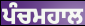
ਪੰਚਮਹਾਲ